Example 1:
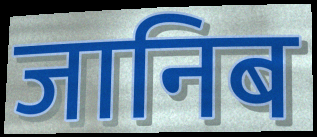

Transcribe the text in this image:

जानिब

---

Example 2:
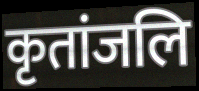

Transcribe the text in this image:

कृतांजलि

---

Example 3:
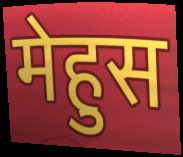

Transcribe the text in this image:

मेहुस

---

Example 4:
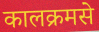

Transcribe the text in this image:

कालक्रमसे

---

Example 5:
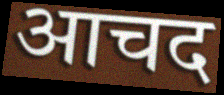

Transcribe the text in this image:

आचद